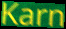
Karn